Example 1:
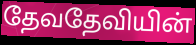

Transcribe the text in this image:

தேவதேவியின்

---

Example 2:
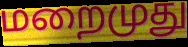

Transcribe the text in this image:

மறைமுது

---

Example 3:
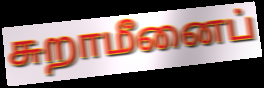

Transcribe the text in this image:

சுறாமீனைப்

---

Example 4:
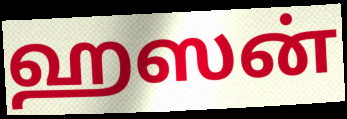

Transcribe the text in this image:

ஹஸன்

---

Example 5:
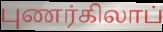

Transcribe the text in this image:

புணர்கிலாப்